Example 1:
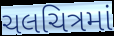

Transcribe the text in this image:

ચલચિત્રમાં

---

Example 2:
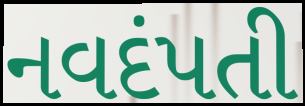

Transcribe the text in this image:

નવદંપતી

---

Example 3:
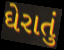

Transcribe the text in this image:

ઘેરાતું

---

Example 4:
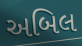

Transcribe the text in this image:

અબિલ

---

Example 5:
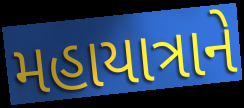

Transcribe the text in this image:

મહાયાત્રાને